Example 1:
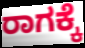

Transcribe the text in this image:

ರಾಗಕ್ಕೆ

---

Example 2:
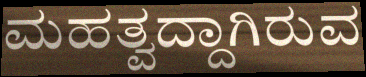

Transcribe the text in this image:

ಮಹತ್ವದ್ದಾಗಿರುವ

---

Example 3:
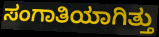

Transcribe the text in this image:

ಸಂಗಾತಿಯಾಗಿತ್ತು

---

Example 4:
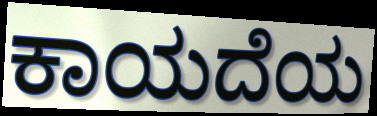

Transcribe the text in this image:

ಕಾಯದೆಯ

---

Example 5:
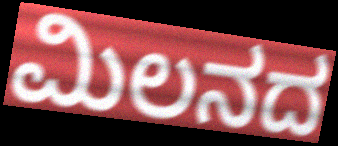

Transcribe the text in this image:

ಮಿಲನದ